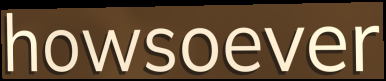
howsoever